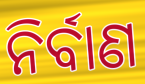
ନିର୍ବାଣ